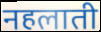
नहलाती